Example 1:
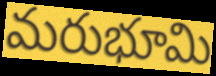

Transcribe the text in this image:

మరుభూమి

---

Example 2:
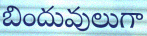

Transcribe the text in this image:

బిందువులుగా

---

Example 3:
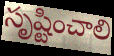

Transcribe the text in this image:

సృష్టించాలి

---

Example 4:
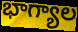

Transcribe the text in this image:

భాగ్యాల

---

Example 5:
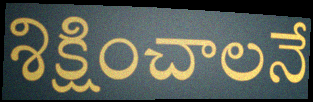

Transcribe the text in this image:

శిక్షించాలనే